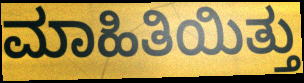
ಮಾಹಿತಿಯಿತ್ತು